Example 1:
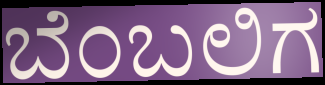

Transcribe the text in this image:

ಬೆಂಬಲಿಗ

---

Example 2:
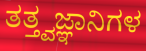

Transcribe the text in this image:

ತತ್ತ್ವಜ್ಞಾನಿಗಳ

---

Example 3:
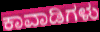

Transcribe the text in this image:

ಕಾವಾಡಿಗಳು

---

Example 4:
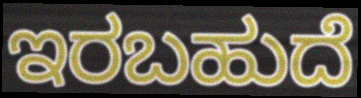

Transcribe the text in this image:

ಇರಬಹುದೆ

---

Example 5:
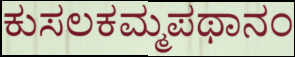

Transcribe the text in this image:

ಕುಸಲಕಮ್ಮಪಥಾನಂ